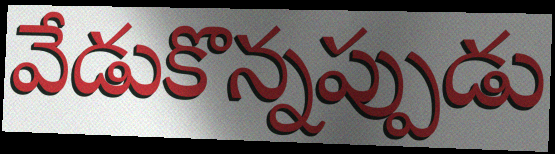
వేడుకొన్నప్పుడు